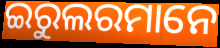
ଇରୁଲରମାନେ